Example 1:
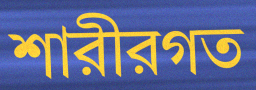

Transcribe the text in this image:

শারীরগত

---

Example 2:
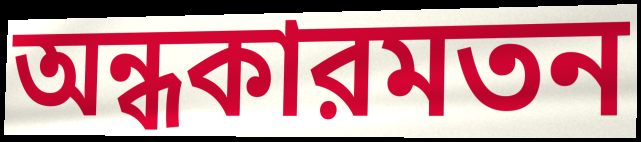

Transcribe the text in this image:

অন্ধকারমতন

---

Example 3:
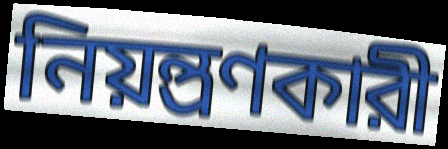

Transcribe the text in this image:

নিয়ন্ত্রণকারী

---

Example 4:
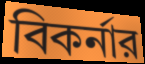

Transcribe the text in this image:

বিকর্নার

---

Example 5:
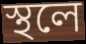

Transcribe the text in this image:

স্থলে